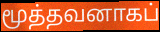
மூத்தவனாகப்